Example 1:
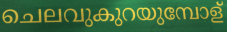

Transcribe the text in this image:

ചെലവുകുറയുമ്പോള്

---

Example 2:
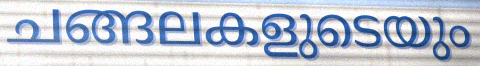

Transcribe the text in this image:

ചങ്ങലകളുടെയും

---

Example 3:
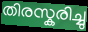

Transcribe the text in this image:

തിരസ്കരിച്ചു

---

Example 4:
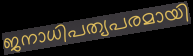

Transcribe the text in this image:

ജനാധിപത്യപരമായി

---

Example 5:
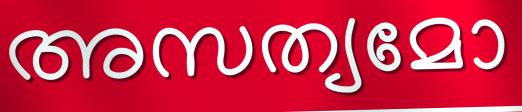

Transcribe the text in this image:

അസത്യമോ